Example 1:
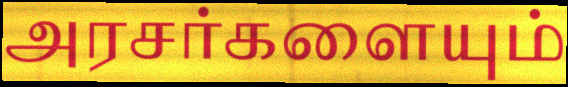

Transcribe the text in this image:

அரசர்களையும்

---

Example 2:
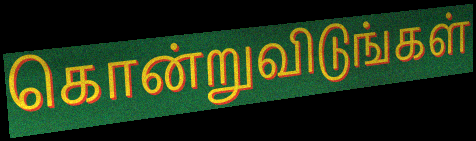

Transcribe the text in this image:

கொன்றுவிடுங்கள்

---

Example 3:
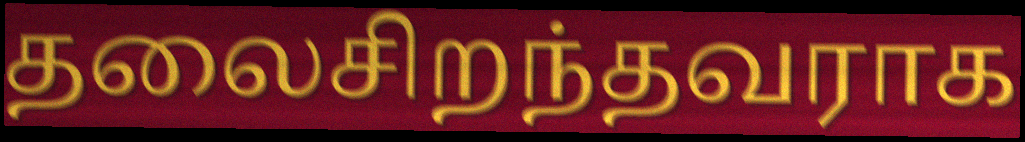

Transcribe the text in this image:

தலைசிறந்தவராக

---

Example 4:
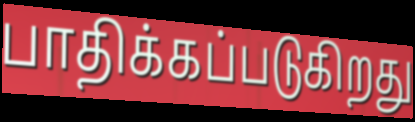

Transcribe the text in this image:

பாதிக்கப்படுகிறது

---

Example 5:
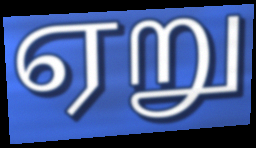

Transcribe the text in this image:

ஏறு